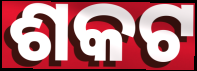
ଶକଟ